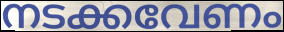
നടക്കവേണം